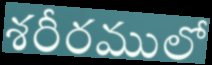
శరీరములో